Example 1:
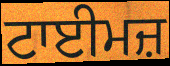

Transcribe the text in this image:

ਟਾਈਮਜ਼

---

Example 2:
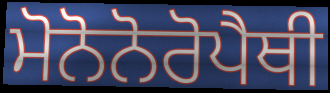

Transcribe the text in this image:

ਮੋਨੋਨੋਰੋਪੈਥੀ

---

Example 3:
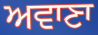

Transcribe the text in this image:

ਅਵਾਣਾ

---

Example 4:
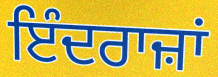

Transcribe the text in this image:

ਇੰਦਰਾਜ਼ਾਂ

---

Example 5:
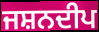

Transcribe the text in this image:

ਜਸ਼ਨਦੀਪ